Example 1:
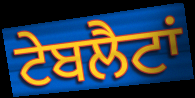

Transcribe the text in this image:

ਟੇਬਲੈਟਾਂ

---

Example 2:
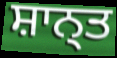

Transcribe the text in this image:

ਸ਼ਾਨ੍ਤ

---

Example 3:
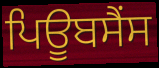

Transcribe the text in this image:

ਪਿਊਬਸੈਂਸ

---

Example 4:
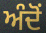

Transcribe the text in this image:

ਅੰਦੋਂ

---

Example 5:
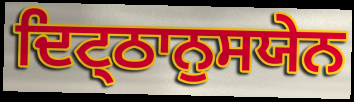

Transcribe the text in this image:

ਦਿਟ੍ਠਾਨੁਸਯੇਨ